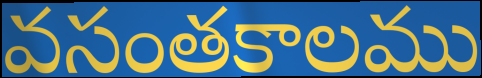
వసంతకాలము